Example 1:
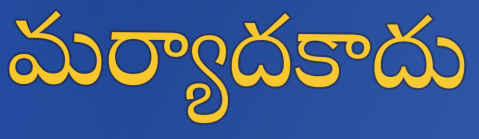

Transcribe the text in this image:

మర్యాదకాదు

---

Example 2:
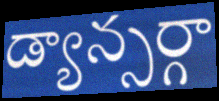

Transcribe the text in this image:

డ్యాన్సర్గా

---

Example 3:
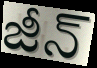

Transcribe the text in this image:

జీన్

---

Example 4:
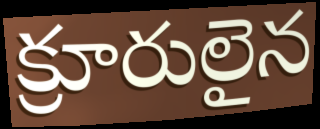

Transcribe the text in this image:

క్రూరులైన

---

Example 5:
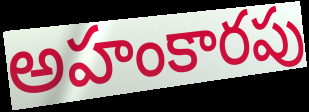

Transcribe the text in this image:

అహంకారపు